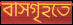
বাসগৃহতে